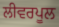
ਲੀਵਰਪੂਲ